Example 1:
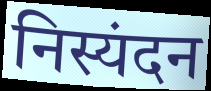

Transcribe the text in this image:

निस्यंदन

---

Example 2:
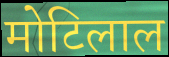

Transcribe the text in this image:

मोटिलाल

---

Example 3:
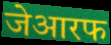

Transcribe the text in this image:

जेआरफ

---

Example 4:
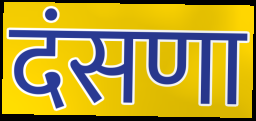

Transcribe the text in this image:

दंसणा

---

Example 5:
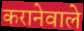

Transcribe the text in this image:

करानेवाले